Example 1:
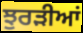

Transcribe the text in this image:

ਝੁਰੜੀਆਂ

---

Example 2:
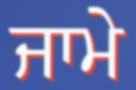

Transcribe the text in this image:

ਜਾਮੇ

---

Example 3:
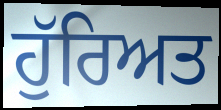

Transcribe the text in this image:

ਹੁੱਰਿਅਤ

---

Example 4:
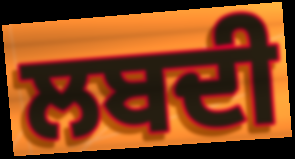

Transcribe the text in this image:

ਲਬਦੀ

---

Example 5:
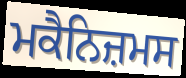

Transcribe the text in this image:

ਮਕੈਨਿਜ਼ਮਸ